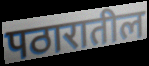
पठारातील